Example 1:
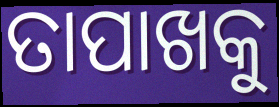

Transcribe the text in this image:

ତାପାଖକୁ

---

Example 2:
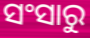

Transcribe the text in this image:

ସଂସାରୁ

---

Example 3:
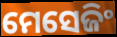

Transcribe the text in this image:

ମେସେଜିଂ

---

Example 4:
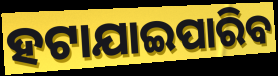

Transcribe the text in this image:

ହଟାଯାଇପାରିବ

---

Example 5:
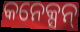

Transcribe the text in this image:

କନେକ୍ସନ୍